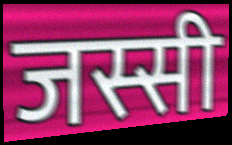
जस्सी